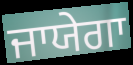
ਜਾਯੇਗਾ